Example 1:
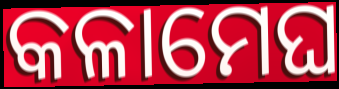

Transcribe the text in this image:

କଳାମେଘ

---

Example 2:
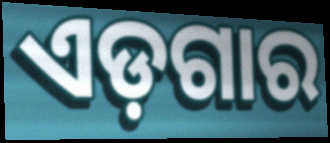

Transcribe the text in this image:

ଏଡ଼ଗାର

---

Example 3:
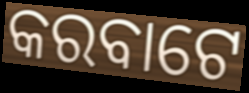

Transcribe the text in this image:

କରବାଟେ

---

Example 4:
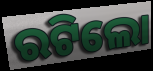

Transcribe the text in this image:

ରଟିଲୋ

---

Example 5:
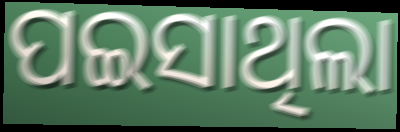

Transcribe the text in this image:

ପଇସାଥିଲା